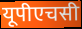
यूपीएचसी